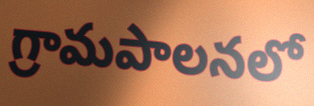
గ్రామపాలనలో